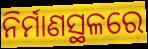
ନିର୍ମାଣସ୍ଥଳରେ